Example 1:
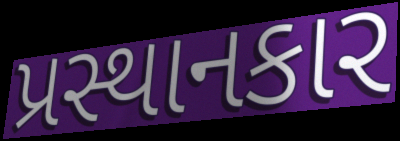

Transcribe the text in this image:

પ્રસ્થાનકાર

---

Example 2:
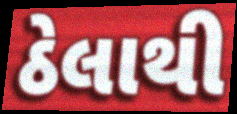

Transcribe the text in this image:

ઠેલાથી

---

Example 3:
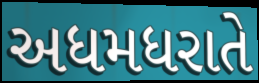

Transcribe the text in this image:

અધમધરાતે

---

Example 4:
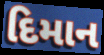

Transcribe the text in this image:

દિમાન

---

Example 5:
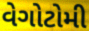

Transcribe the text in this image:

વેગોટોમી